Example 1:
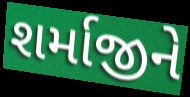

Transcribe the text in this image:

શર્માજીને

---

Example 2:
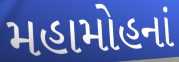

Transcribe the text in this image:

મહામોહનાં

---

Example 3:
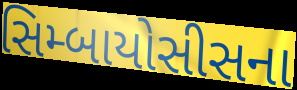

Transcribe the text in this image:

સિમ્બાયોસીસના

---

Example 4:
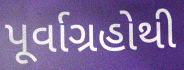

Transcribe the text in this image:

પૂર્વાગ્રહોથી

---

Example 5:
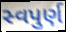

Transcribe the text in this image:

સ્વપુર્ણ